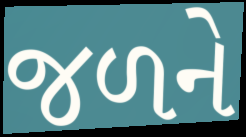
જળને